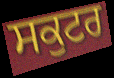
ਸਕੁਟਰ